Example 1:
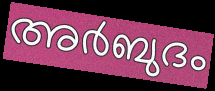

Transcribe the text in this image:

അർബുദം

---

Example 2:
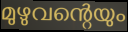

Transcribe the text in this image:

മുഴുവന്റെയും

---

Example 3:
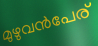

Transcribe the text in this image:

മുഴുവൻപേര്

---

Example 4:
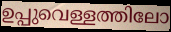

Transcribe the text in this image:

ഉപ്പുവെള്ളത്തിലോ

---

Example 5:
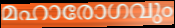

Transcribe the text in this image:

മഹാരോഗവും